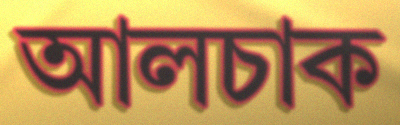
আলচাক